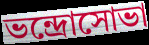
ভন্দ্রোসোভা